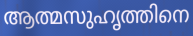
ആത്മസുഹൃത്തിനെ